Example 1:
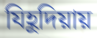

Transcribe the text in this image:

যিহূদিয়ায়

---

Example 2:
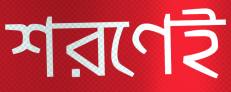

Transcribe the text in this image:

শরণেই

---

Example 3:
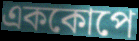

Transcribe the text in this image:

এককোপে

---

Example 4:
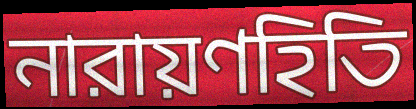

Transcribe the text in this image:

নারায়ণহিতি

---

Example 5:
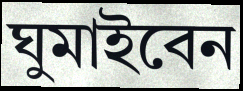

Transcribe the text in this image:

ঘুমাইবেন